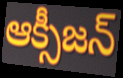
ఆక్సీజన్